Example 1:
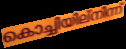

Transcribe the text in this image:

കൊച്ചിയില്നിന്ന്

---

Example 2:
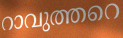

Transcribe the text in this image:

റാവുത്തറെ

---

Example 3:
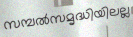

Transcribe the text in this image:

സമ്പൽസമൃദ്ധിയിലല്ല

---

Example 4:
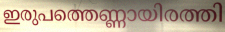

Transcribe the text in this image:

ഇരുപത്തെണ്ണായിരത്തി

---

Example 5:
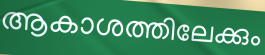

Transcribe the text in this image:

ആകാശത്തിലേക്കും